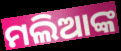
ମଲିଆଙ୍କ